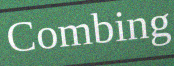
Combing